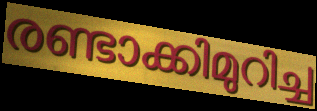
രണ്ടാക്കിമുറിച്ച